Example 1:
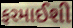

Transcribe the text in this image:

ફરમાઈશી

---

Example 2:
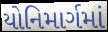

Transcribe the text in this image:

યોનિમાર્ગમાં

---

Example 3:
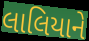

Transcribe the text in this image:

લાલિયાને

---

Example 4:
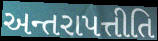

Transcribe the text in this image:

અન્તરાપત્તીતિ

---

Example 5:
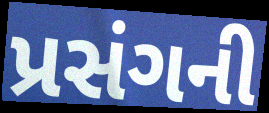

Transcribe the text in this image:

પ્રસંગની